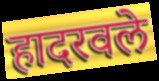
हादरवले